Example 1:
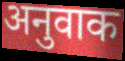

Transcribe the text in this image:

अनुवाक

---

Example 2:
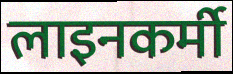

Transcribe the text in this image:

लाइनकर्मी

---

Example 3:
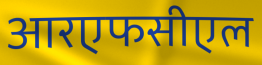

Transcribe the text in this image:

आरएफसीएल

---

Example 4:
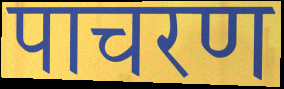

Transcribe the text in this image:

पाचरण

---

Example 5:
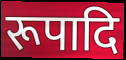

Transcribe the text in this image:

रूपादि